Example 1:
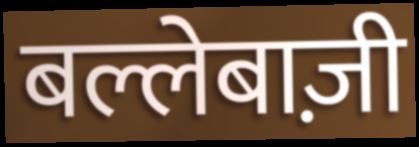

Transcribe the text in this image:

बल्‍लेबाज़ी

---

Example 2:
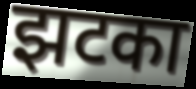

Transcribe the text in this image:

झटका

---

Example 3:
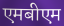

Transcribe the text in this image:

एमबीएम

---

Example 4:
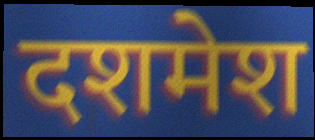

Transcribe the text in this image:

दशमेश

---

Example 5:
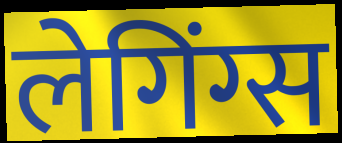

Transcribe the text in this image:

लेगिंग्स